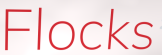
Flocks